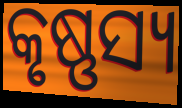
କୃଷ୍ଣସ୍ୟ